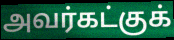
அவர்கட்குக்